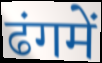
ढंगमें